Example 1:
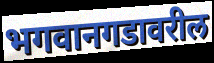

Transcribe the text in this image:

भगवानगडावरील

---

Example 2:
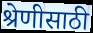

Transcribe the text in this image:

श्रेणीसाठी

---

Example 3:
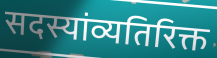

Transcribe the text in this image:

सदस्यांव्यतिरिक्त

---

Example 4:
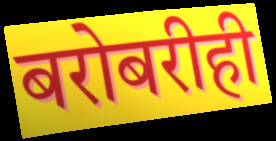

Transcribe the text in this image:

बरोबरीही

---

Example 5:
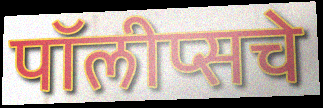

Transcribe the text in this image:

पॉलीप्सचे